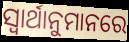
ସ୍ୱାର୍ଥାନୁମାନରେ